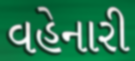
વહેનારી